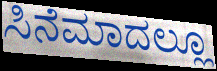
ಸಿನೆಮಾದಲ್ಲೂ